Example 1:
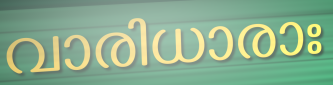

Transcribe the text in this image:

വാരിധാരാഃ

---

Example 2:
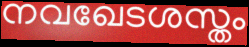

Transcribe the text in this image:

നവഖേടശസ്തം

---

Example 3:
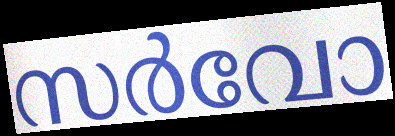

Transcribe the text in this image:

സർവോ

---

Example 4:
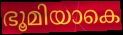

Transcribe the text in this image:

ഭൂമിയാകെ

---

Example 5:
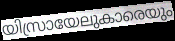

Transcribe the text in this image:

യിസ്രായേലുകാരെയും